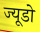
ज्यूडो